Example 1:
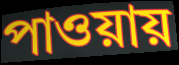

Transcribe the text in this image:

পাওয়ায়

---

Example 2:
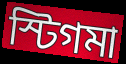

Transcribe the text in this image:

স্টিগমা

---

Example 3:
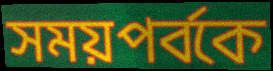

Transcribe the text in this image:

সময়পর্বকে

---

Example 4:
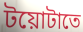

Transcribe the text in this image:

টয়োটাতে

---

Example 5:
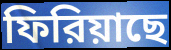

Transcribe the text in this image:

ফিরিয়াছে